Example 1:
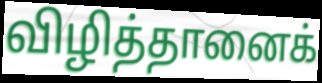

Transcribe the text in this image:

விழித்தானைக்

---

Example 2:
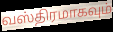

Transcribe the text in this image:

வஸ்திரமாகவும்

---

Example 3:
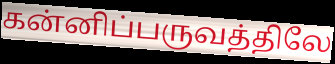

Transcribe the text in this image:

கன்னிப்பருவத்திலே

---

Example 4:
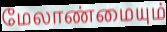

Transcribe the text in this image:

மேலாண்மையும்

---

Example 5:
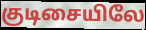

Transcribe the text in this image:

குடிசையிலே